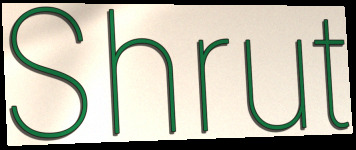
Shrut